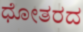
ಧೋತರದ